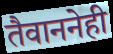
तैवाननेही